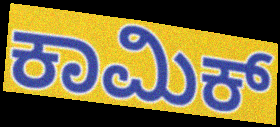
ಕಾಮಿಕ್